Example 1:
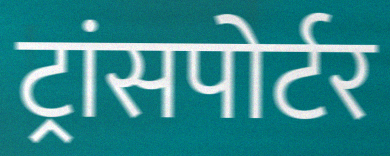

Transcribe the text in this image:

ट्रांसपोर्टर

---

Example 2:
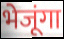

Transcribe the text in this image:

भेजूंगा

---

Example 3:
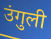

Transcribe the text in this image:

उंगुली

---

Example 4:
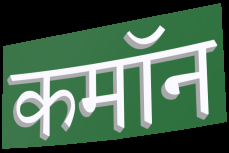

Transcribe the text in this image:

कमॉन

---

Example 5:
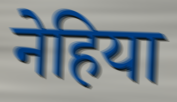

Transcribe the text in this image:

नेहिया